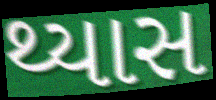
થ્યાસ